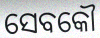
ସେବକୌ